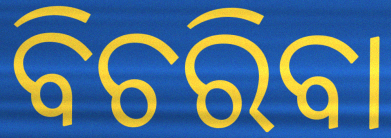
ବିଚରିବା